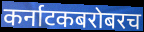
कर्नाटकबरोबरच